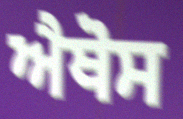
ਐਥੋਸ